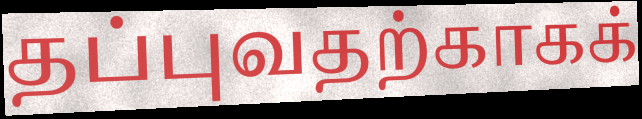
தப்புவதற்காகக்